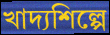
খাদ্যশিল্পে